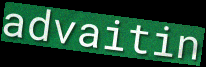
advaitin